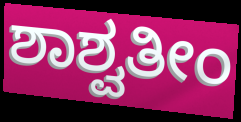
ಶಾಶ್ವತೀಂ